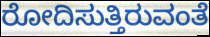
ರೋದಿಸುತ್ತಿರುವಂತೆ